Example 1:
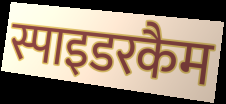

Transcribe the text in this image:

स्पाइडरकैम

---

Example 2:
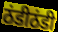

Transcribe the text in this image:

ठंडीठंडी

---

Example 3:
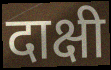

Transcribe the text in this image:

दाक्षी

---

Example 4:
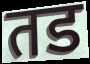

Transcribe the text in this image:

तड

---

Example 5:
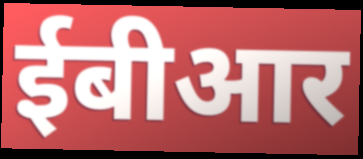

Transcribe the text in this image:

ईबीआर